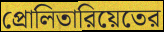
প্রোলিতারিয়েতের